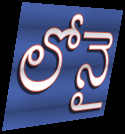
లోనై